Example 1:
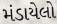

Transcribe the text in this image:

મંડાયેલો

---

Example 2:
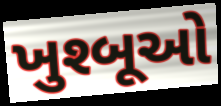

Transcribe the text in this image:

ખુશ્બૂઓ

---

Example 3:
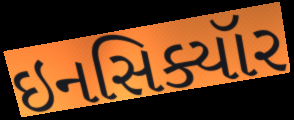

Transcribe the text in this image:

ઇનસિક્યૉર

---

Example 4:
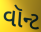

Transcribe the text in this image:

વૉન્ટ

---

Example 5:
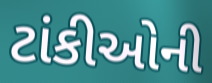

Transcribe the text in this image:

ટાંકીઓની